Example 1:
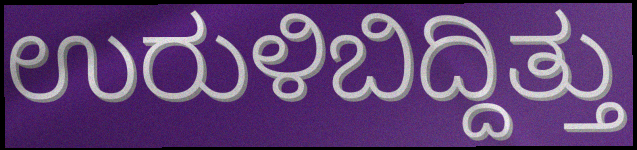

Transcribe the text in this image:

ಉರುಳಿಬಿದ್ದಿತ್ತು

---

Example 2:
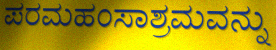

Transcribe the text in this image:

ಪರಮಹಂಸಾಶ್ರಮವನ್ನು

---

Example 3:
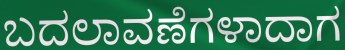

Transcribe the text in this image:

ಬದಲಾವಣೆಗಳಾದಾಗ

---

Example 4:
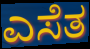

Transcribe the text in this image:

ಎಸೆತ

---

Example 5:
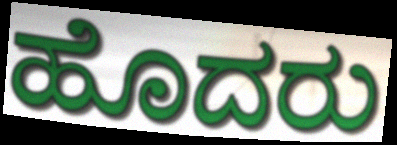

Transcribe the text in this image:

ಹೊದರು